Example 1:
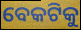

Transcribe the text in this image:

ବେକଟିକୁ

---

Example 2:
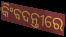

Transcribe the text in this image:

କିଂବଦନ୍ତୀରେ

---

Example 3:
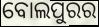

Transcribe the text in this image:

ବୋଲପୁରର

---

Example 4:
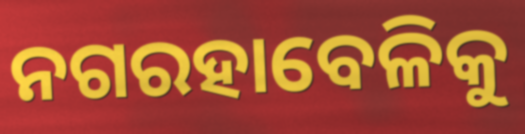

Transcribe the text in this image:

ନଗରହାବେଳିକୁ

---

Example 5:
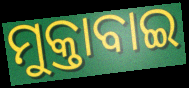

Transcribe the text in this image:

ମୁକ୍ତାବାଇ